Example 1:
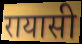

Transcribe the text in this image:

रायासी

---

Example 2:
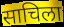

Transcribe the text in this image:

साचिला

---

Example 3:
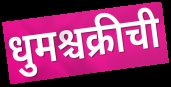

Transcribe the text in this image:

धुमश्चक्रीची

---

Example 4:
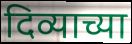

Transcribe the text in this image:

दिव्याच्या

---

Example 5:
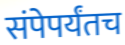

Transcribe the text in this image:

संपेपर्यंतच